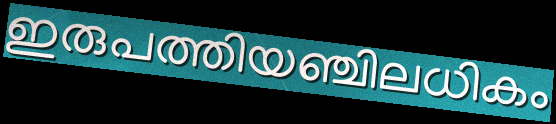
ഇരുപത്തിയഞ്ചിലധികം